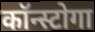
कॉन्स्टोगा